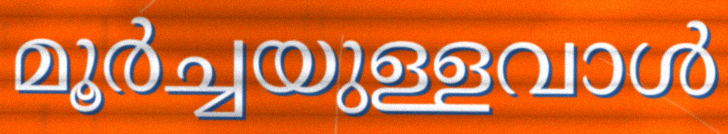
മൂർച്ചയുള്ളവാൾ